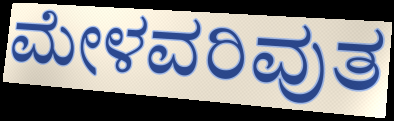
ಮೇಳವರಿವುತ